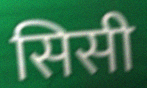
सिसी